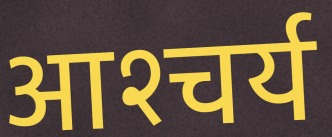
आश्चर्य